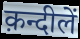
क़न्दीलें